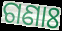
ଗଣାଃ